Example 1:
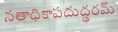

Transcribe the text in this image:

నతాధికాపదుద్ఢరమ్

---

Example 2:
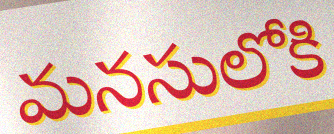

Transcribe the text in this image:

మనసులోకి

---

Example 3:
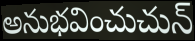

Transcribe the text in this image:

అనుభవించుచున్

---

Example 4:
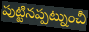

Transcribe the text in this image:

పుట్టినప్పట్నుంచీ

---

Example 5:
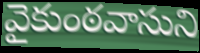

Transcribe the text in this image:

వైకుంఠవాసుని